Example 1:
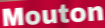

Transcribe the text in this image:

Mouton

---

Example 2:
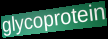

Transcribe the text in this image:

glycoprotein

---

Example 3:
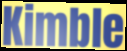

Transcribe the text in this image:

Kimble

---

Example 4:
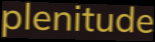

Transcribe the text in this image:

plenitude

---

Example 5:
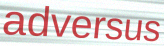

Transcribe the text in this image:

adversus